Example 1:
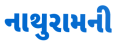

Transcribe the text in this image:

નાથુરામની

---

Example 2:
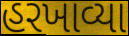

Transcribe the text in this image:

હરખાવ્યા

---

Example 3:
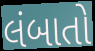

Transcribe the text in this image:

લંબાતો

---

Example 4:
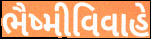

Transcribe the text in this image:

ભૈષ્મીવિવાહે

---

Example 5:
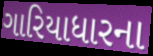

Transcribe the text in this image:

ગારિયાધારના